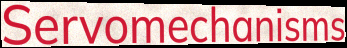
Servomechanisms